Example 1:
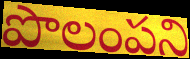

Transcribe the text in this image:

పొలంపని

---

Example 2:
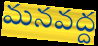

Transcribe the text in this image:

మనవద్ద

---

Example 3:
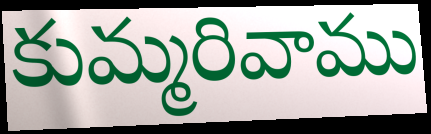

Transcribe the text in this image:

కుమ్మరివాము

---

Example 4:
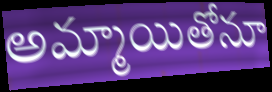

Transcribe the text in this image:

అమ్మాయితోనూ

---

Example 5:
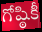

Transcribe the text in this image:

గోష్ఠికీ